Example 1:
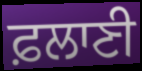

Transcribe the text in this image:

ਫ਼ਲਾਣੀ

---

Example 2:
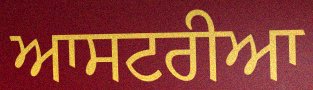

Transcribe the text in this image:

ਆਸਟਰੀਆ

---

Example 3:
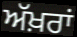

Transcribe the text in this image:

ਅੱਖ਼ਰਾਂ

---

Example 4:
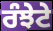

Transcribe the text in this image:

ਰੰਝੇਟੇ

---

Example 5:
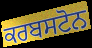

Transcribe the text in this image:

ਕਰਬਸਟੋਨ